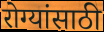
रोग्यांसाठी